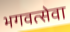
भगवत्सेवा